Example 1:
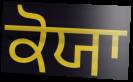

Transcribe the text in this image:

ਕੋਯਾ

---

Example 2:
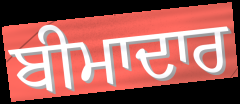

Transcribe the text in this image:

ਬੀਮਾਦਾਰ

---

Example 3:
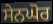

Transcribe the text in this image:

ਸੇਨਘੋਰ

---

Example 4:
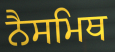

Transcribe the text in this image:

ਨੈਸਮਿਥ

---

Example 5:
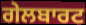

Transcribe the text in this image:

ਗੇਲਬਾਰਟ